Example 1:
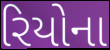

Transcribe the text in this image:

રિયોના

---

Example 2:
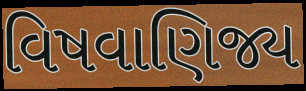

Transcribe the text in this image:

વિષવાણિજ્ય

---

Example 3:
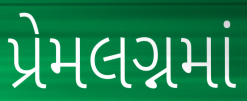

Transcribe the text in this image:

પ્રેમલગ્નમાં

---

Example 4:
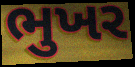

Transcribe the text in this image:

ભુખર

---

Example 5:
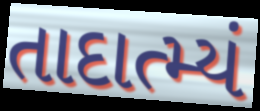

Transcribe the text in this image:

તાદાત્મ્યં